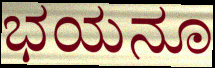
ಭಯನೂ